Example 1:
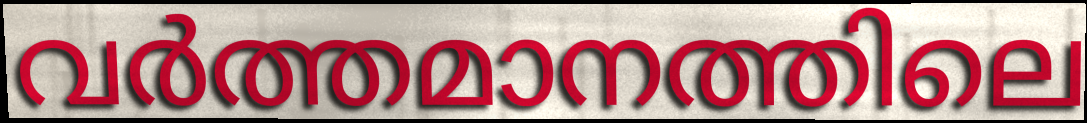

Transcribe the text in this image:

വർത്തമാനത്തിലെ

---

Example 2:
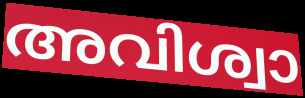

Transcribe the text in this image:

അവിശ്വാ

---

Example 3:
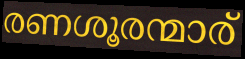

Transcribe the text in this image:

രണശൂരന്മാര്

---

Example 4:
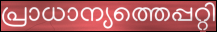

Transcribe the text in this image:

പ്രാധാന്യത്തെപ്പറ്റി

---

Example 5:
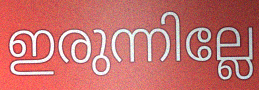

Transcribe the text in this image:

ഇരുന്നില്ലേ